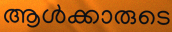
ആൾക്കാരുടെ